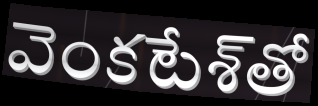
వెంకటేశ్‌తో